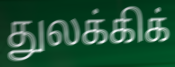
துலக்கிக்